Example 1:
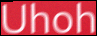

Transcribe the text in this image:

Uhoh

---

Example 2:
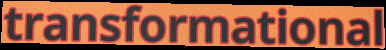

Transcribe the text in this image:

transformational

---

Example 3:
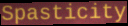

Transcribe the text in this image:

Spasticity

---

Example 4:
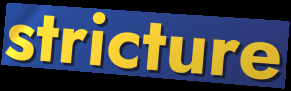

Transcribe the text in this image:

stricture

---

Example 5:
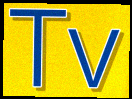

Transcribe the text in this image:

Tv